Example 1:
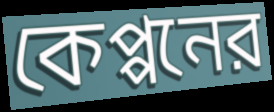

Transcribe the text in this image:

কেপ্পনের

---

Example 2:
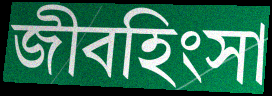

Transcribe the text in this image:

জীবহিংসা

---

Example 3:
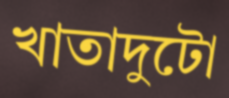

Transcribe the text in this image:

খাতাদুটো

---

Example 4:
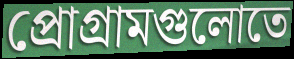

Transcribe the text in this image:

প্রোগ্রামগুলোতে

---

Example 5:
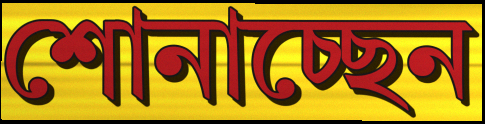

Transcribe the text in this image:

শোনাচ্ছেন